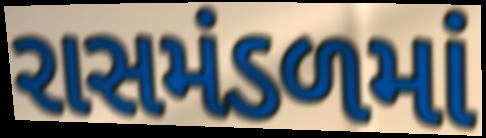
રાસમંડળમાં